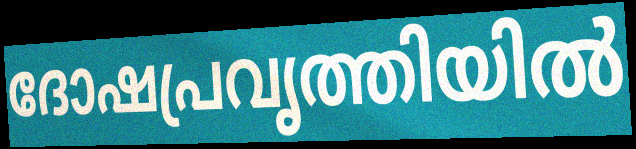
ദോഷപ്രവൃത്തിയിൽ